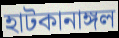
হাটকানাঙ্গল